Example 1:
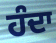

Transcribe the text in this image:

ਹੰਦਾ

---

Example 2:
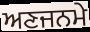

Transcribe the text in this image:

ਅਣਜਨਮੇ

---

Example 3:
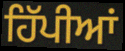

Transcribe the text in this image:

ਹਿੱਪੀਆਂ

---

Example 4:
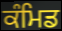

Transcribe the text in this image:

ਕੰਮਿਡ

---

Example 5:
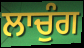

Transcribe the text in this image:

ਲਾਚੁੰਗ